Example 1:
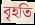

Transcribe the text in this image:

বৃহতি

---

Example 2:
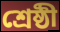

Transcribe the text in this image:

শ্রেষ্ঠী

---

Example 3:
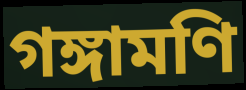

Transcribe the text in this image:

গঙ্গামণি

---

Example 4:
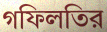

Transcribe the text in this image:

গফিলতির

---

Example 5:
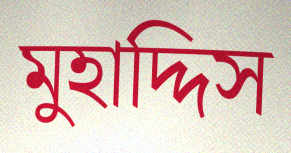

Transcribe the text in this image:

মুহাদ্দিস